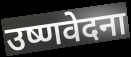
उष्णवेदना